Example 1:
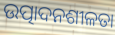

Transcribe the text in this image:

ଉତ୍ପାଦନଶୀଳତା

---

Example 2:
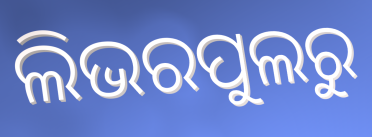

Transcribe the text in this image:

ଲିଭରପୁଲରୁ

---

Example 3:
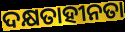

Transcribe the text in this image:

ଦକ୍ଷତାହୀନତା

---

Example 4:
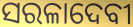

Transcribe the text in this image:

ସରଳାଦେବୀ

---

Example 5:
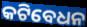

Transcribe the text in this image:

କଟିବେଧନ